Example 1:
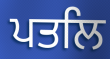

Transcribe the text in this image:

ਪਤਲਿ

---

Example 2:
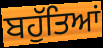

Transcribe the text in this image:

ਬਹੁੱਤਿਆਂ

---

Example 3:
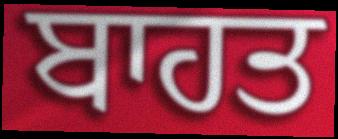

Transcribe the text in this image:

ਬਾਹਤ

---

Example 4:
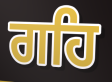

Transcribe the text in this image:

ਗਹਿ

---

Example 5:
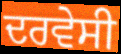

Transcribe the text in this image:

ਦਰਵੇਸੀ